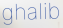
ghalib